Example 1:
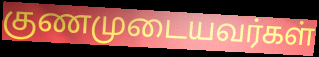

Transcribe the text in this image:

குணமுடையவர்கள்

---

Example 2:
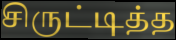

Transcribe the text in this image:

சிருட்டித்த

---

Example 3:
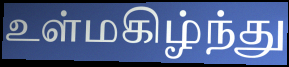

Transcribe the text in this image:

உள்மகிழ்ந்து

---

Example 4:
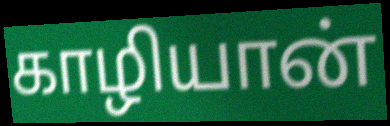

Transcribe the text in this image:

காழியான்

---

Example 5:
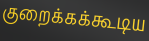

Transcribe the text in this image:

குறைக்கக்கூடிய